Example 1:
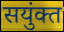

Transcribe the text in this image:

सयुंक्त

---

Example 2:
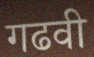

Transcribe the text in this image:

गढवी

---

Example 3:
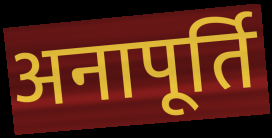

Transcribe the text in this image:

अनापूर्ति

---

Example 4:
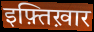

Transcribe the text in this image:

इफ़्तिख़ार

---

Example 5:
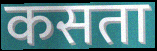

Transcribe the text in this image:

कसता